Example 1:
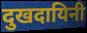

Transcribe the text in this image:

दुखदायिनी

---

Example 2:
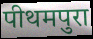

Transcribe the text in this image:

पीथमपुरा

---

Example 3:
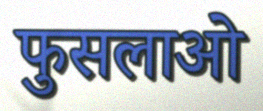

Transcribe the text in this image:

फुसलाओ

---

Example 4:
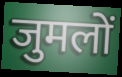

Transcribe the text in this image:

जुमलों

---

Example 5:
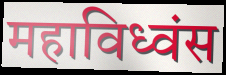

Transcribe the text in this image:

महाविध्वंस